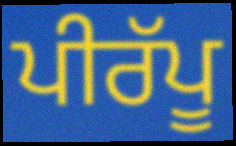
ਪੀਰੱਪੂ